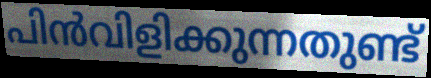
പിൻവിളിക്കുന്നതുണ്ട്